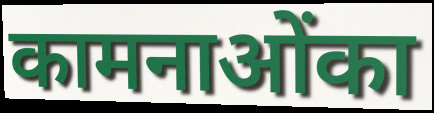
कामनाओंका